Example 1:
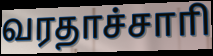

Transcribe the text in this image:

வரதாச்சாரி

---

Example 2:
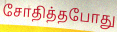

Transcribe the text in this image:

சோதித்தபோது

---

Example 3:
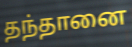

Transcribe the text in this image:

தந்தானை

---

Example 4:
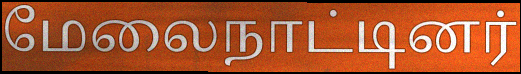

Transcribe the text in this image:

மேலைநாட்டினர்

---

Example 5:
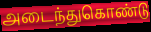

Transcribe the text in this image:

அடைந்துகொண்டு